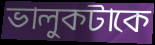
ভালুকটাকে